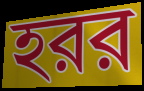
হরর